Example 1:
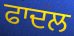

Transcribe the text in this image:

ਫਾਦਲ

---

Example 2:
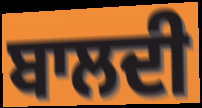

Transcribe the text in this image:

ਬਾਲਦੀ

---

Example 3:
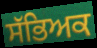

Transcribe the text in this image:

ਸੱਭਿਅਕ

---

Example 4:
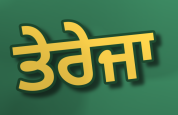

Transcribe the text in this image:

ਤੇਰੇਜਾ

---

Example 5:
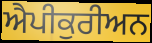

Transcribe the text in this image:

ਐਪੀਕੁਰੀਅਨ